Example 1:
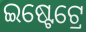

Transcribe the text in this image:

ଇଷ୍ଟେଟ୍ରେ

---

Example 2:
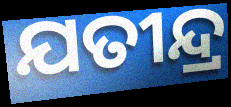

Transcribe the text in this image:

ଯତୀନ୍ଦ୍ର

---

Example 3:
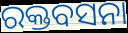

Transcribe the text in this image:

ରକ୍ତବସନା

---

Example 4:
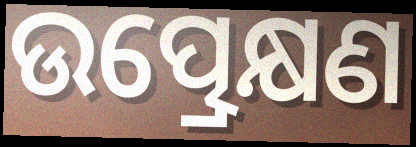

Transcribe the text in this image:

ଉତ୍ପ୍ରେକ୍ଷଣ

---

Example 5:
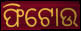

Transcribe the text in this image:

ଫିଟୋଉ